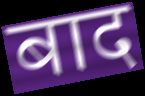
बाद